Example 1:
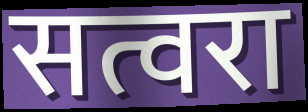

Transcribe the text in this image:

सत्वरा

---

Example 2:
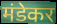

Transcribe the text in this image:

मंडेकर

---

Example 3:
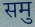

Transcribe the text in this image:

समु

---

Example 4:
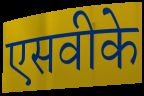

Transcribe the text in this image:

एसवीके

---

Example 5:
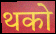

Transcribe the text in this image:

थको